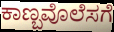
ಕಾಣ್ಬವೊಲೆಸಗೆ